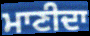
ਮਾਣੀਦਾ